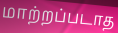
மாற்றப்படாத